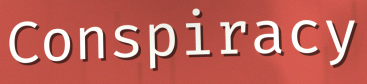
Conspiracy